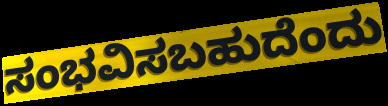
ಸಂಭವಿಸಬಹುದೆಂದು